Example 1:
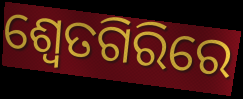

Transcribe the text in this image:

ଶ୍ୱେତଗିରିରେ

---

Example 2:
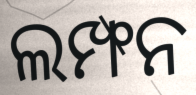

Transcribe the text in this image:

ଲମ୍ଫନ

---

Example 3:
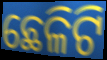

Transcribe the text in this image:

ଛେଳିଟି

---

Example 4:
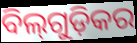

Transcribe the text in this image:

ବିଲ୍‌ଗୁଡ଼ିକର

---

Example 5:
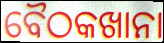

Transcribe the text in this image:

ବୈଠକଖାନା